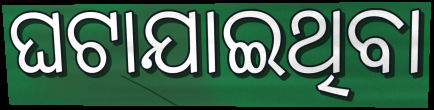
ଘଟାଯାଇଥିବା